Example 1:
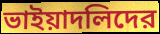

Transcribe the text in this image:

ভাইয়াদলিদের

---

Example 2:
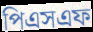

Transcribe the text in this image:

পিএসএফ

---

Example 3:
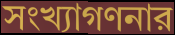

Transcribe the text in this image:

সংখ্যাগণনার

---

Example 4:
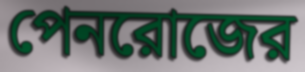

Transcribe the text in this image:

পেনরোজের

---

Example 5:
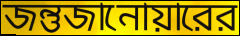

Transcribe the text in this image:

জন্তুজানোয়ারের